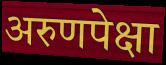
अरुणपेक्षा